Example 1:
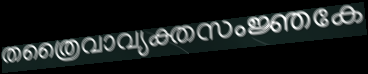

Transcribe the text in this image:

തത്രൈവാവ്യക്തസംജ്ഞകേ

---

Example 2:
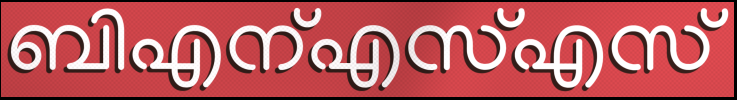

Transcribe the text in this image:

ബിഎന്എസ്എസ്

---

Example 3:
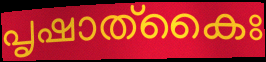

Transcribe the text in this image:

പൃഷാത്കൈഃ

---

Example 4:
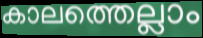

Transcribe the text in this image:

കാലത്തെല്ലാം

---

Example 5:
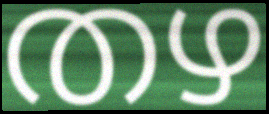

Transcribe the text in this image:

തഴ